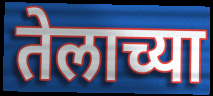
तेलाच्या